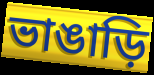
ভাঙাড়ি